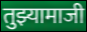
तुझ्यामाजी